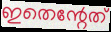
ഇതെന്റേത്